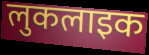
लुकलाइक